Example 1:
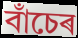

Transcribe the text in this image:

বাঁচেৰ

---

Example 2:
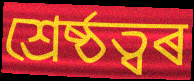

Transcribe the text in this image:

শ্ৰেষ্ঠত্বৰ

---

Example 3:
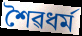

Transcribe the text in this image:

শৈৱধৰ্ম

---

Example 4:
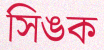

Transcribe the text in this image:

সিঙক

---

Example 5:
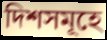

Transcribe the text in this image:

দিশসমূহে